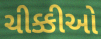
ચીક્કીઓ